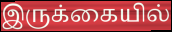
இருக்கையில்